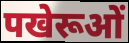
पखेरूओं